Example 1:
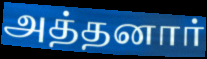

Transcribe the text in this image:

அத்தனார்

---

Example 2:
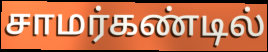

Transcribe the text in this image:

சாமர்கண்டில்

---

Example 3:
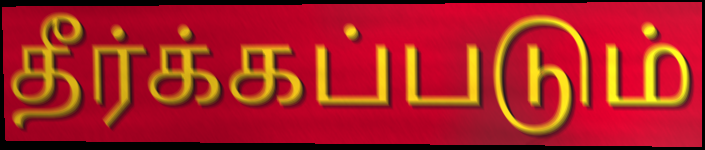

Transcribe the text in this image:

தீர்க்கப்படும்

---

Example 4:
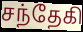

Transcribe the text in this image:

சந்தேகி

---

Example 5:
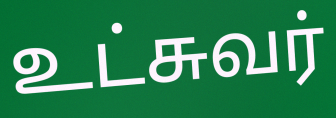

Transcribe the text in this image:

உட்சுவர்